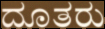
ದೂತರು